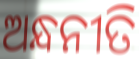
ଅନ୍ଧନୀତି